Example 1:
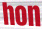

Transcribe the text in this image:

hon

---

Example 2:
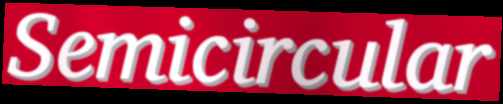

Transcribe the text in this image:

Semicircular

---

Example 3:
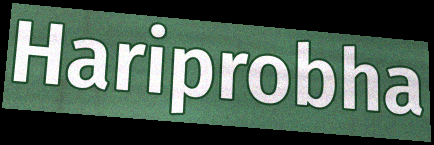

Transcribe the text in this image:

Hariprobha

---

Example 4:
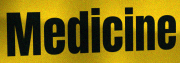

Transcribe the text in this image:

Medicine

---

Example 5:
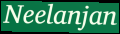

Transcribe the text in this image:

Neelanjan